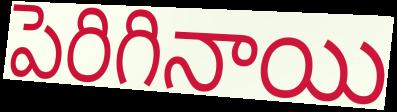
పెరిగినాయి